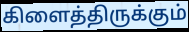
கிளைத்திருக்கும்